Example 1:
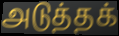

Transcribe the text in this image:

அடுத்தக்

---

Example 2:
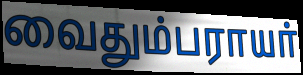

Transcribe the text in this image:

வைதும்பராயர்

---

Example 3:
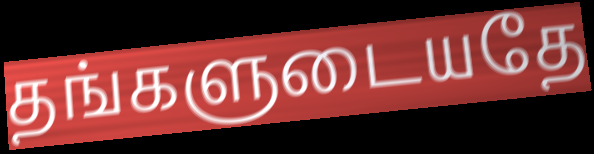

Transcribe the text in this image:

தங்களுடையதே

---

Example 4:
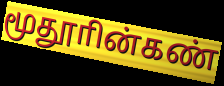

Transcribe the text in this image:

மூதூரின்கண்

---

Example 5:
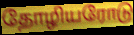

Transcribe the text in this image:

தோழியரோடு